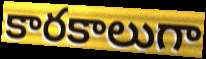
కారకాలుగా